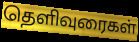
தெளிவுரைகள்